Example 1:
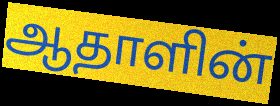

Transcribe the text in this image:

ஆதாளின்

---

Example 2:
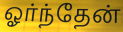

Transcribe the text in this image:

ஓர்ந்தேன்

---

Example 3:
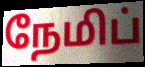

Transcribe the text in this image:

நேமிப்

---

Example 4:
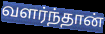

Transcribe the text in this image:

வளர்ந்தான்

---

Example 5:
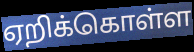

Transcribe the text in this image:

ஏறிக்கொள்ள